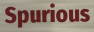
Spurious